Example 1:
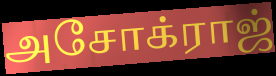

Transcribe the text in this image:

அசோக்ராஜ்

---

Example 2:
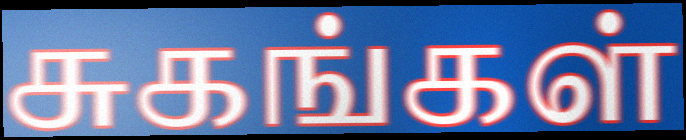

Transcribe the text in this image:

சுகங்கள்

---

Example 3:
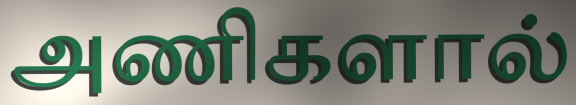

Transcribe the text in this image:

அணிகளால்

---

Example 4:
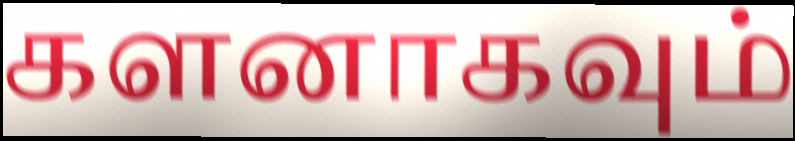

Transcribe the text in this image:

களனாகவும்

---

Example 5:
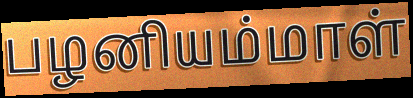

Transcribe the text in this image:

பழனியம்மாள்